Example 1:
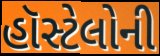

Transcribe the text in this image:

હૉસ્ટેલોની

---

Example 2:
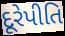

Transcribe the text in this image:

દૂરેપીતિ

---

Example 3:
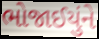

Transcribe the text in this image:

ભોજાઈયુંને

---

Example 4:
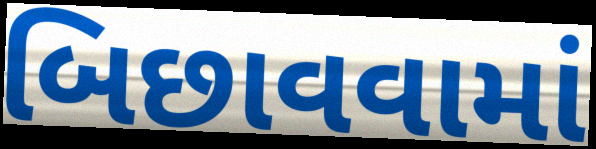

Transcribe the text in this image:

બિછાવવામાં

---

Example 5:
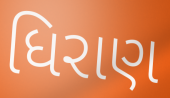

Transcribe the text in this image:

ધિરાણ